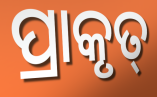
ପ୍ରାକୃତ୍